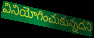
వినియోగించుకున్నదని